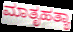
ಮಾತೃಹತ್ಯಾ